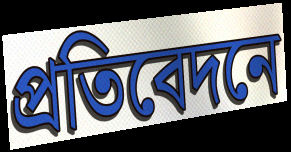
প্রতিবেদনে